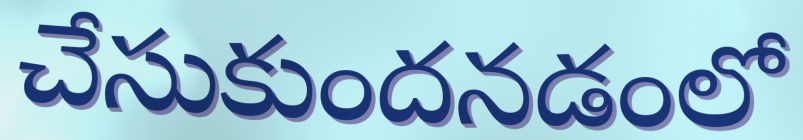
చేసుకుందనడంలో